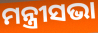
ମନ୍ତ୍ରୀସଭା